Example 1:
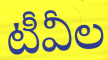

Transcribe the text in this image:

టీవీల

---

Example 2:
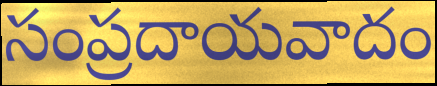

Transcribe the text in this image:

సంప్రదాయవాదం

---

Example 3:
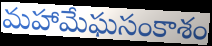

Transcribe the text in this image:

మహామేఘసంకాశం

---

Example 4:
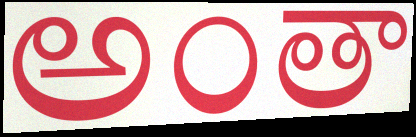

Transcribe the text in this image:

అంతా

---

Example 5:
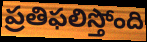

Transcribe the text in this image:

ప్రతిఫలిస్తోంది